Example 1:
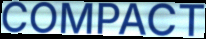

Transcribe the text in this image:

COMPACT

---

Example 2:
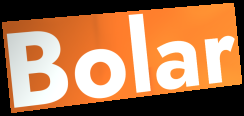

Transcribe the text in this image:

Bolar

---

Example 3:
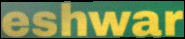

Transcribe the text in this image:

eshwar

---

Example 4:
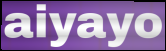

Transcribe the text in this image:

aiyayo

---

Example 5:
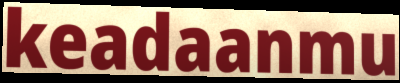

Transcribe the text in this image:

keadaanmu